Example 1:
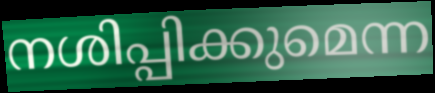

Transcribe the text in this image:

നശിപ്പിക്കുമെന്ന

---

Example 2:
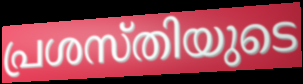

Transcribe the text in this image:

പ്രശസ്തിയുടെ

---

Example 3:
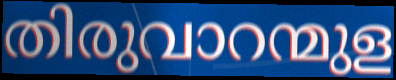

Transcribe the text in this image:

തിരുവാറന്മുള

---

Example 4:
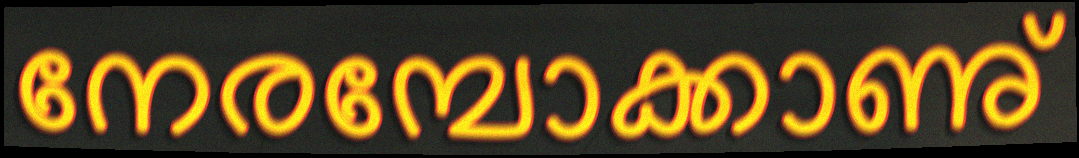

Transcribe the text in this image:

നേരമ്പോക്കാണു്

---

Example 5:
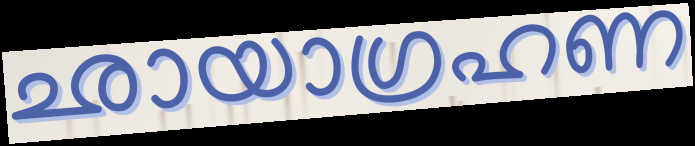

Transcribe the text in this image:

ഛായാഗ്രഹണ